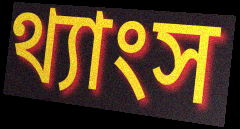
থ্যাংস